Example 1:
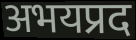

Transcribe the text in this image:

अभयप्रद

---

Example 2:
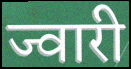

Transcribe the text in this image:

ज्वारी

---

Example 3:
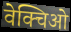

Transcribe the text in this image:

वेक्चिओ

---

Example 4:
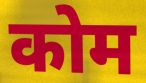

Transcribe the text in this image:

कोम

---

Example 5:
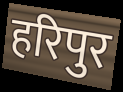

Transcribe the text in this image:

हरिपुर